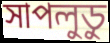
সাপলুডু